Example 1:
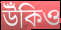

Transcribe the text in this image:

উঁকিও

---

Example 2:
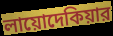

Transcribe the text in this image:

লায়োদেকিয়ার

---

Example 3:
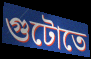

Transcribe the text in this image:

গুটোতে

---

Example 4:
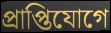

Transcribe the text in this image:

প্রাপ্তিযোগে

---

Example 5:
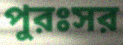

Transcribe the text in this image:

পুরঃসর